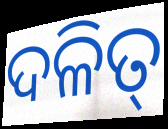
ଦଳିତ୍